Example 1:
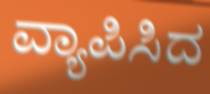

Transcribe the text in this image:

ವ್ಯಾಪಿಸಿದ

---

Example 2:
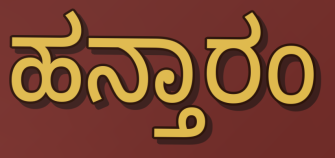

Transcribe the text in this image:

ಹನ್ತಾರಂ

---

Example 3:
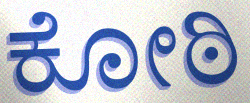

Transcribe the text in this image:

ಕೋಠಿ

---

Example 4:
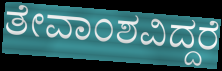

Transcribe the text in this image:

ತೇವಾಂಶವಿದ್ದರೆ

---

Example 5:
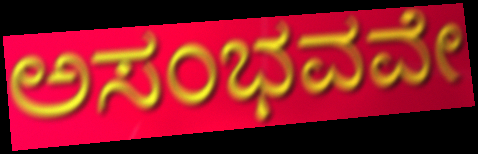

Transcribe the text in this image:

ಅಸಂಭವವೇ